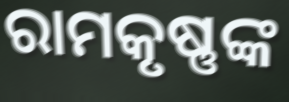
ରାମକୃଷ୍ଣଙ୍କ